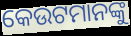
କେଉଟମାନଙ୍କୁ